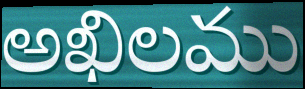
అఖిలము